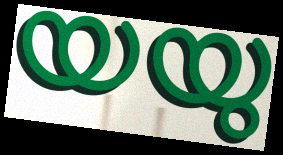
യയു